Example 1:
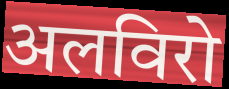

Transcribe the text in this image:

अलविरो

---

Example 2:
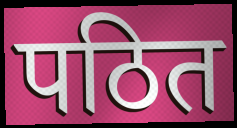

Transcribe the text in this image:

पठित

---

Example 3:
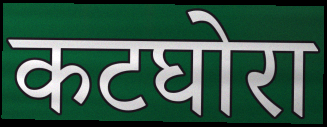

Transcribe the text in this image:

कटघोरा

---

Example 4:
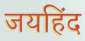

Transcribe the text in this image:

जयहिंद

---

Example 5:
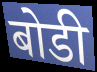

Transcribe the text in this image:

बोडी